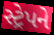
સ્ટ્રેપને